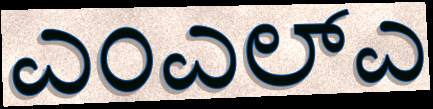
ಎಂಎಲ್ಎ